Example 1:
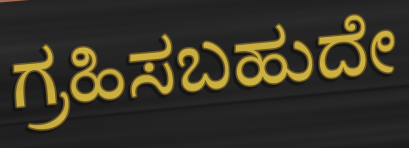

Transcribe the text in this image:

ಗ್ರಹಿಸಬಹುದೇ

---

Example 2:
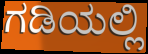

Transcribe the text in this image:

ಗಡಿಯಲ್ಲಿ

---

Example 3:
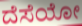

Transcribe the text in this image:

ದೆಸೆಯೋ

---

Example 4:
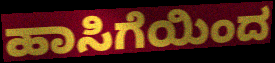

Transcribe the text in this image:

ಹಾಸಿಗೆಯಿಂದ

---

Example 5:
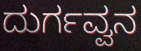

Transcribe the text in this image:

ದುರ್ಗವ್ವನ